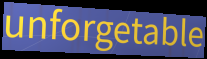
unforgetable